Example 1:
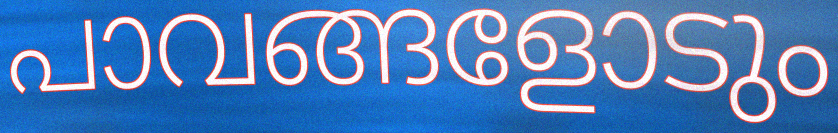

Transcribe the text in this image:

പാവങ്ങളോടും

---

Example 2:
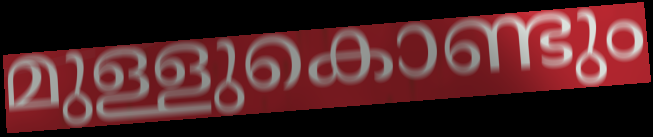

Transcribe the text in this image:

മുള്ളുകൊണ്ടും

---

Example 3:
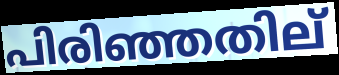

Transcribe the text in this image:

പിരിഞ്ഞതില്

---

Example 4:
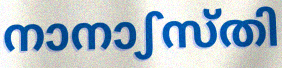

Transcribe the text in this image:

നാനാഽസ്തി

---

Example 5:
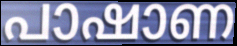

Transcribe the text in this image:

പാഷാണ